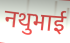
नथुभाई